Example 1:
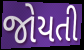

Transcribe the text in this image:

જોયતી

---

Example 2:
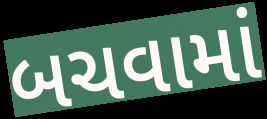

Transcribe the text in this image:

બચવામાં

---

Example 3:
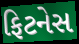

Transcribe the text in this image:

ફિટનેસ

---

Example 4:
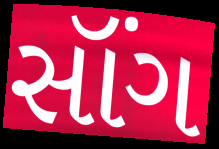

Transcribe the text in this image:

સૉંગ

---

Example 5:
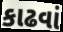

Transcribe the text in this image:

કાઢવાં